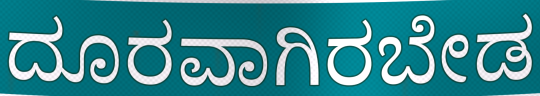
ದೂರವಾಗಿರಬೇಡ